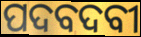
ପଦବଦବୀ